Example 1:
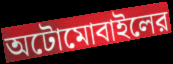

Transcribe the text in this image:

অটোমোবাইলের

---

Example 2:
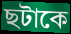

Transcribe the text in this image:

ছটাকে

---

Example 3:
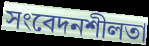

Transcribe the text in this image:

সংবেদনশীলতা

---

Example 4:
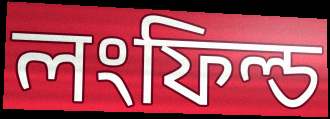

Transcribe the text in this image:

লংফিল্ড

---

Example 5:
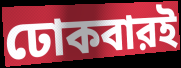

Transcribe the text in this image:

ঢোকবারই